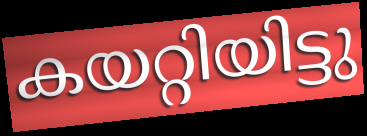
കയറ്റിയിട്ടു